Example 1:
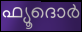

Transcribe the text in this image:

ഫ്യൂദൊർ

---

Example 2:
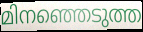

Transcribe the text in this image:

മിനഞ്ഞെടുത്ത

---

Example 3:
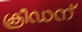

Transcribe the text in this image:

ക്രീഡന്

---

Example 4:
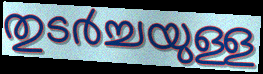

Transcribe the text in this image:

തുടർച്ചയുള്ള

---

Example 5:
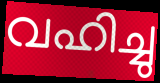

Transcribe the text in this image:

വഹിച്ചു